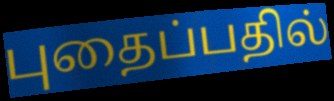
புதைப்பதில்